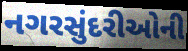
નગરસુંદરીઓની